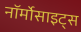
नॉर्मोसाइट्स